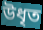
উধৃত